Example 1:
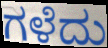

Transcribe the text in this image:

ಗಳೆದು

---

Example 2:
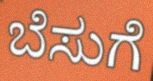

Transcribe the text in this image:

ಬೆಸುಗೆ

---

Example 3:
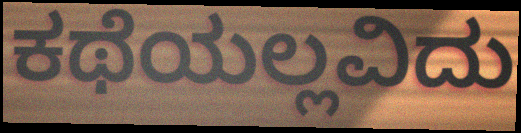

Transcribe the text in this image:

ಕಥೆಯಲ್ಲವಿದು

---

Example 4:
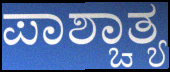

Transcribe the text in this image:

ಪಾಶ್ಚಾತ್ಯ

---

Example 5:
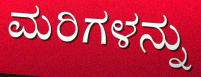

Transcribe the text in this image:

ಮರಿಗಳನ್ನು